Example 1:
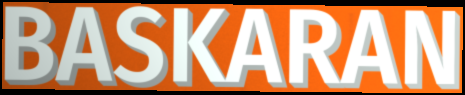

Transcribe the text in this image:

BASKARAN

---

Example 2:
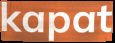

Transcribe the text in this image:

kapat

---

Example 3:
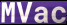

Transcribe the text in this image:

MVac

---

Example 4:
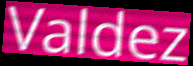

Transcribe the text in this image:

Valdez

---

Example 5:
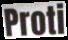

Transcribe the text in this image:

Proti